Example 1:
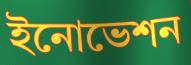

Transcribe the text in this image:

ইনোভেশন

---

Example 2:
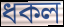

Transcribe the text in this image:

ধকল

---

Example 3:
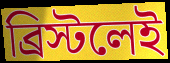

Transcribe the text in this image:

ব্রিস্টলেই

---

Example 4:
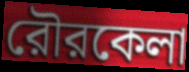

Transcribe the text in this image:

রৌরকেলা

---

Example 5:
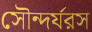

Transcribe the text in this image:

সৌন্দর্যরস